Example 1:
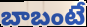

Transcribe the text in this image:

బాబంటే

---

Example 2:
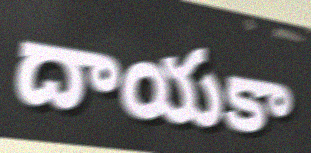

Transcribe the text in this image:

దాయకా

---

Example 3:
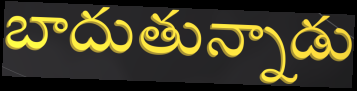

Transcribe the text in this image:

బాదుతున్నాడు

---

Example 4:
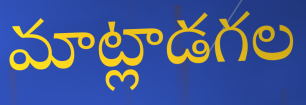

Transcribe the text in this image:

మాట్లాడగల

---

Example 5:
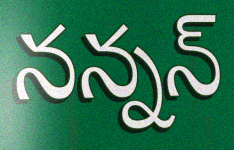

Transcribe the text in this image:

నన్నన్